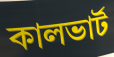
কালভার্ট